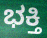
ಭಕ್ತಿ